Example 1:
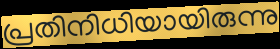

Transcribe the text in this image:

പ്രതിനിധിയായിരുന്നു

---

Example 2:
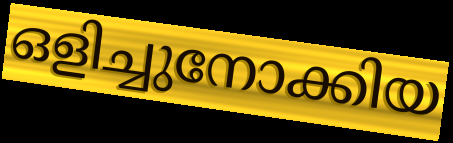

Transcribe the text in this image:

ഒളിച്ചുനോക്കിയ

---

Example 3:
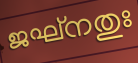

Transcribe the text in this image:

ജഘ്നതുഃ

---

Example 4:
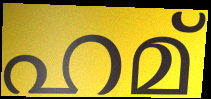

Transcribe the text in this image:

ഹമ്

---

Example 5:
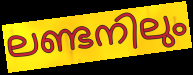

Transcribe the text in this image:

ലണ്ടനിലും